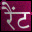
रैंट